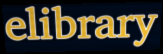
elibrary